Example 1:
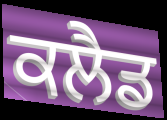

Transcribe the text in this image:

ਕਲੈਡ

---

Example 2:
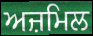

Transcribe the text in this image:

ਅਜ਼ਮਿਲ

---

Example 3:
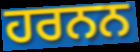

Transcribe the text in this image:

ਹਰਨਨ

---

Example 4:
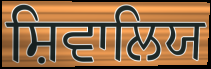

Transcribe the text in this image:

ਸ਼ਿਵਾਲਿਯ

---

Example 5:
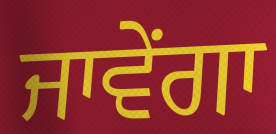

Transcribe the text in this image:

ਜਾਵੇਂਗਾ